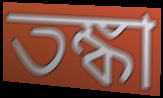
তঙ্কা